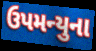
ઉપમન્યુના